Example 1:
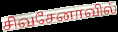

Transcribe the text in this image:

சிவசேனாவில்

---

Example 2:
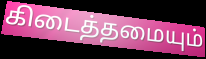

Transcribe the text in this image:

கிடைத்தமையும்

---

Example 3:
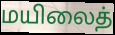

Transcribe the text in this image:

மயிலைத்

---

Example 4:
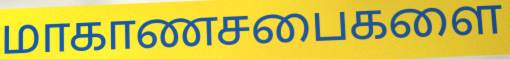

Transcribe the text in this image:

மாகாணசபைகளை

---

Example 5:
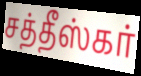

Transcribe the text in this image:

சத்தீஸ்கர்